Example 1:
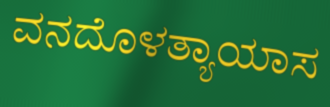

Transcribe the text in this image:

ವನದೊಳತ್ಯಾಯಾಸ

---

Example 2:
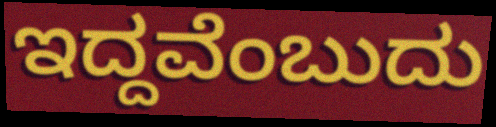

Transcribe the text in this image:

ಇದ್ದವೆಂಬುದು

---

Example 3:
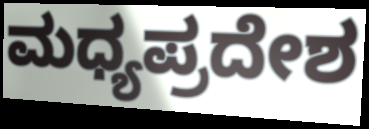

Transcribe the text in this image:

ಮಧ್ಯಪ್ರದೇಶ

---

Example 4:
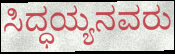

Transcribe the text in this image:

ಸಿದ್ಧಯ್ಯನವರು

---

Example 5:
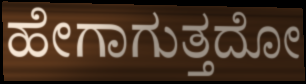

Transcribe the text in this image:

ಹೇಗಾಗುತ್ತದೋ